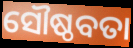
ସୌଷ୍ଠବତା